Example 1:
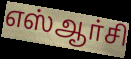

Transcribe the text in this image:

எஸ்ஆர்சி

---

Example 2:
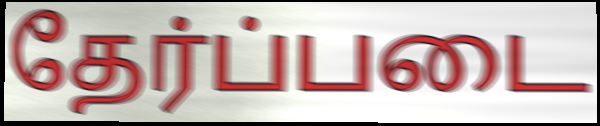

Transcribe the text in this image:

தேர்ப்படை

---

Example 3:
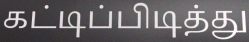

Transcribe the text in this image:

கட்டிப்பிடித்து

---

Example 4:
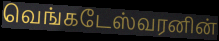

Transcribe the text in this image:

வெங்கடேஸ்வரனின்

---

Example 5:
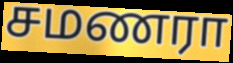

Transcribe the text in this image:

சமணரா